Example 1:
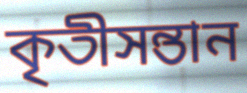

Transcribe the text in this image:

কৃতীসন্তান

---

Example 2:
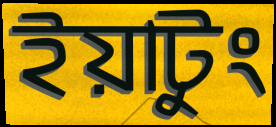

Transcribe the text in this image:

ইয়াটুং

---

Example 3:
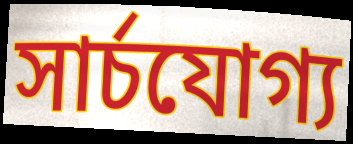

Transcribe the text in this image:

সার্চযোগ্য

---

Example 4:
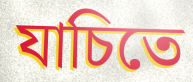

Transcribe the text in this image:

যাচিতে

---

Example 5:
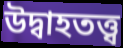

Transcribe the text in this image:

উদ্বাহতত্ত্ব